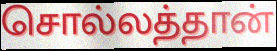
சொல்லத்தான்